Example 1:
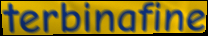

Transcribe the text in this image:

terbinafine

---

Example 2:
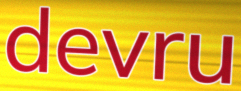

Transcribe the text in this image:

devru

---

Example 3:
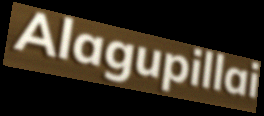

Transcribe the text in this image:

Alagupillai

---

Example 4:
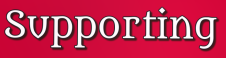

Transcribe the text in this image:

Supporting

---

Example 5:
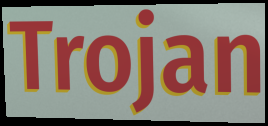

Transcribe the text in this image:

Trojan